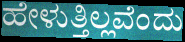
ಹೇಳುತ್ತಿಲ್ಲವೆಂದು